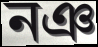
নঞ